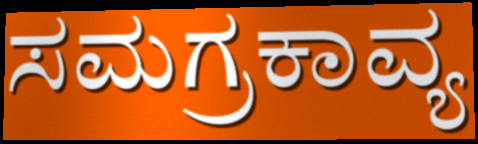
ಸಮಗ್ರಕಾವ್ಯ